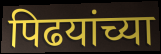
पिढयांच्या